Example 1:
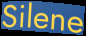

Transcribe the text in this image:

Silene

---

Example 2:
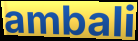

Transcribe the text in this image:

ambali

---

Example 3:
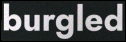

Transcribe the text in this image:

burgled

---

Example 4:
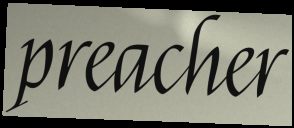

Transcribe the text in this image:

preacher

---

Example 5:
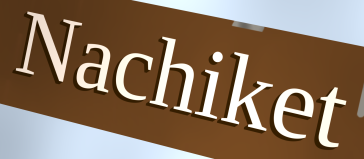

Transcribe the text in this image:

Nachiket